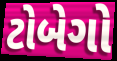
ટોબેગો